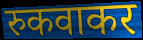
रुकवाकर